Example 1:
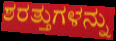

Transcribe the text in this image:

ಶರತ್ತುಗಳನ್ನು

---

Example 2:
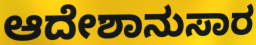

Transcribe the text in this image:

ಆದೇಶಾನುಸಾರ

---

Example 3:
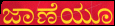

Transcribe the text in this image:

ಜಾಣೆಯೂ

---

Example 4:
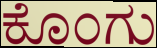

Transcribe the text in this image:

ಕೊಂಗು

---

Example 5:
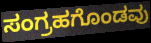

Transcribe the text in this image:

ಸಂಗ್ರಹಗೊಂಡವು